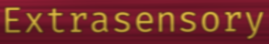
Extrasensory